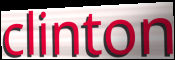
clinton